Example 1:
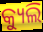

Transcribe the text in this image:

କ୍ୟୁଲି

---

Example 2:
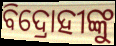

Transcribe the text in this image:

ବିଦ୍ରୋହୀଙ୍କୁ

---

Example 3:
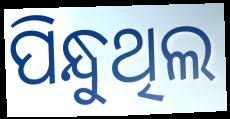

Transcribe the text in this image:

ପିନ୍ଧୁଥିଲ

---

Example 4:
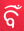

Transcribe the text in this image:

ବିଁ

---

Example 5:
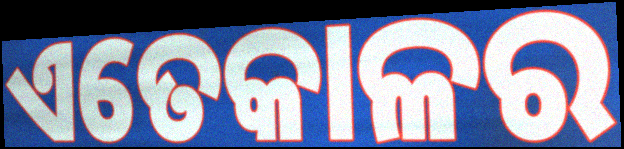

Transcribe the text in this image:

ଏତେକାଳର